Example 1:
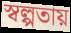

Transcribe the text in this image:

স্বল্পতায়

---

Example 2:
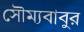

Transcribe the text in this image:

সৌম্যবাবুর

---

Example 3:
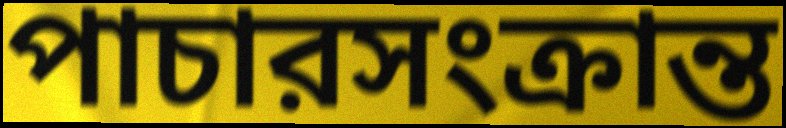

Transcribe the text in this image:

পাচারসংক্রান্ত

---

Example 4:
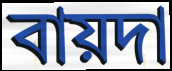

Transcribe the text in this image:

বায়দা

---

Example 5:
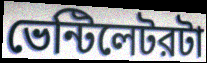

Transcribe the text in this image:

ভেন্টিলেটরটা